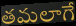
తమలాగే